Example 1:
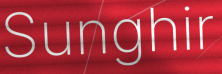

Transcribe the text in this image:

Sunghir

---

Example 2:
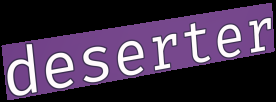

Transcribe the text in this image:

deserter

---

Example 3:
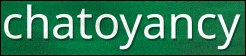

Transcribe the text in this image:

chatoyancy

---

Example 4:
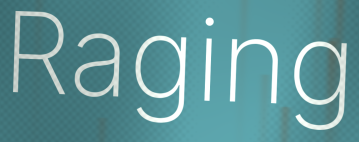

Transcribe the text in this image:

Raging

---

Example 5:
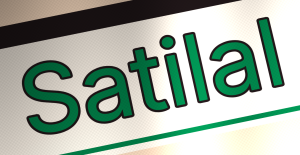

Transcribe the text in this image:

Satilal